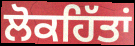
ਲੋਕਹਿੱਤਾਂ